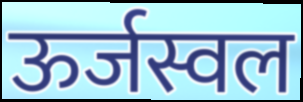
ऊर्जस्वल